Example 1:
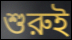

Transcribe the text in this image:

শুরুই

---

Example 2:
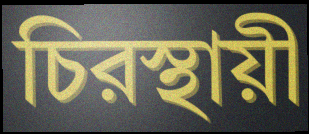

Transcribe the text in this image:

চিরস্থায়ী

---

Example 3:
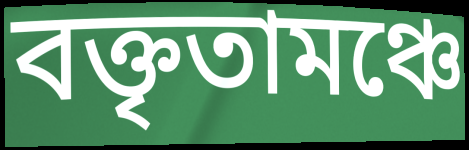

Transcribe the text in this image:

বক্তৃতামঞ্চে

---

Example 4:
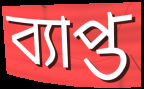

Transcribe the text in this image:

ব্যাপ্ত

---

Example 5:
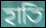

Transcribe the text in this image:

হাতি